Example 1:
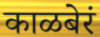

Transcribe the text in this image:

काळबेरं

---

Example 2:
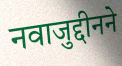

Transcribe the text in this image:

नवाजुद्दीनने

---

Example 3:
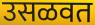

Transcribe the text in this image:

उसळवत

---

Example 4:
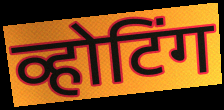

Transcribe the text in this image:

व्होटिंग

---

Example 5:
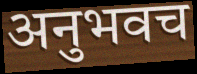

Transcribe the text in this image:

अनुभवच